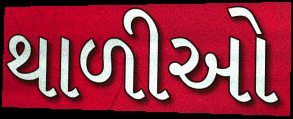
થાળીઓ